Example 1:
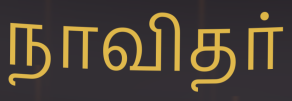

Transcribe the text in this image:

நாவிதர்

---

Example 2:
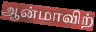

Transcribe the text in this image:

ஆன்மாவிற்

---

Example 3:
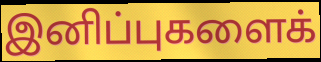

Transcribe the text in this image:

இனிப்புகளைக்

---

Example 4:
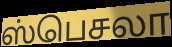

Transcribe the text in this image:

ஸ்பெசலா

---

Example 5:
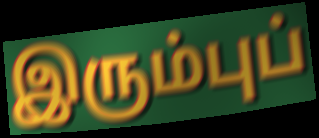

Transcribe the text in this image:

இரும்புப்